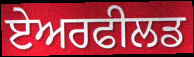
ਏਅਰਫੀਲਡ